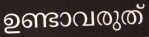
ഉണ്ടാവരുത്